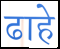
ढाहे